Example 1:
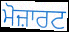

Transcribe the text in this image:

ਮੋਜ਼ਾਰਟ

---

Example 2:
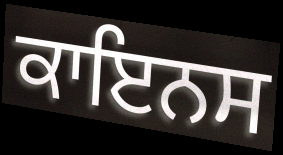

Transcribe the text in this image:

ਕਾਇਨਸ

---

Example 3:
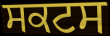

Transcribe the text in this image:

ਸਕਟਸ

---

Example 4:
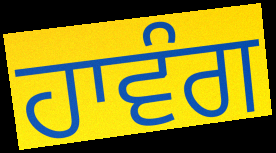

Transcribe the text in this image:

ਹਾਵੰਗ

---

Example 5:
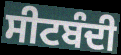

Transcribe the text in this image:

ਸੀਟਬੰਦੀ